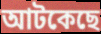
আটকেছে